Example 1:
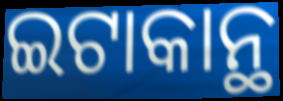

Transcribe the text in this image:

ଇଟାକାନ୍ଥ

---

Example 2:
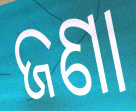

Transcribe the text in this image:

ଜଣା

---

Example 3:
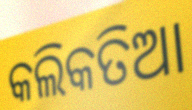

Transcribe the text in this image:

କଲିକତିଆ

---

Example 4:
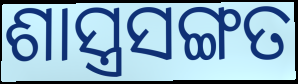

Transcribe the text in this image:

ଶାସ୍ତ୍ରସଙ୍ଗତ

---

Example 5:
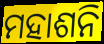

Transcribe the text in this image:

ମହାଶନି